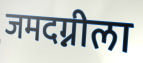
जमदग्नीला